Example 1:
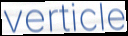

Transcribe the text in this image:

verticle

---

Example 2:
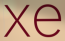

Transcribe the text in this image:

xe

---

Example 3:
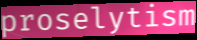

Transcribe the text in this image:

proselytism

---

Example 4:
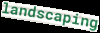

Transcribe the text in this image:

landscaping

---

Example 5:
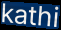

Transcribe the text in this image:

kathi